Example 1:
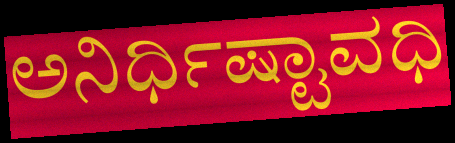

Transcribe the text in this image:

ಅನಿರ್ಧಿಷ್ಟಾವಧಿ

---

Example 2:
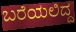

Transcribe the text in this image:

ಬರೆಯಲಿದ್ದ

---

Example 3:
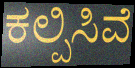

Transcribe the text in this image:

ಕಲ್ಪಿಸಿವೆ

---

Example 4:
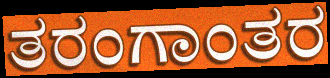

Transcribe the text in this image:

ತರಂಗಾಂತರ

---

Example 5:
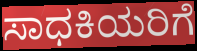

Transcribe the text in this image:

ಸಾಧಕಿಯರಿಗೆ